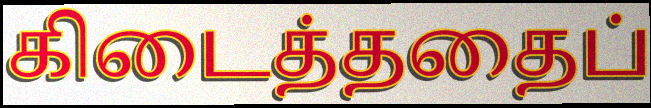
கிடைத்ததைப்